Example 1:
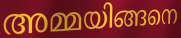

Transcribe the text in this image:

അമ്മയിങ്ങനെ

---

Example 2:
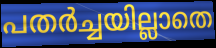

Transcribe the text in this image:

പതർച്ചയില്ലാതെ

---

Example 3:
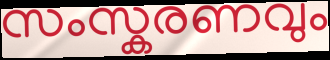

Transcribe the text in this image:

സംസ്കരണവും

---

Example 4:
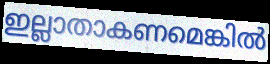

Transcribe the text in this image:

ഇല്ലാതാകണമെങ്കിൽ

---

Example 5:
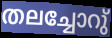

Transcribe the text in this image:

തലച്ചോറു്